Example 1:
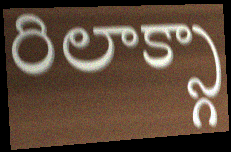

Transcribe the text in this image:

రిలాక్స్గా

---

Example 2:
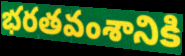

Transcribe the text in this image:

భరతవంశానికి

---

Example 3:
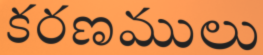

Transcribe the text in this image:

కరణములు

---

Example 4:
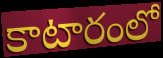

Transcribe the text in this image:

కాటారంలో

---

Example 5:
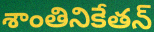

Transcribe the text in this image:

శాంతినికేతన్